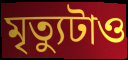
মৃত্যুটাও